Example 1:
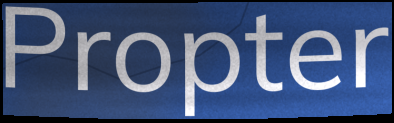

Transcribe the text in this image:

Propter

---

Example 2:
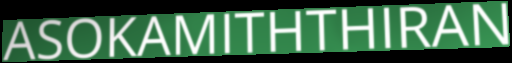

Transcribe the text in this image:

ASOKAMITHTHIRAN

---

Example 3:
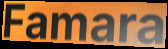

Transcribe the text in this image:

Famara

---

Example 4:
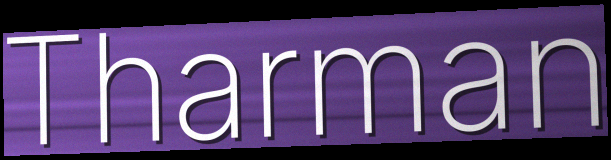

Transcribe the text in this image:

Tharman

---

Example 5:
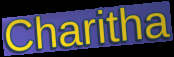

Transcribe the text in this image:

Charitha